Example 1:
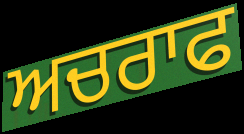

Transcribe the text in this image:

ਅਚਰਾਫ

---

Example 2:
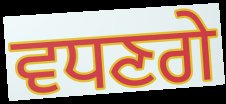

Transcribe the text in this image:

ਵਧਣਗੇ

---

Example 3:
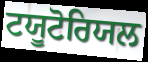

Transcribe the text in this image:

ਟਯੂਟੋਰਿਯਲ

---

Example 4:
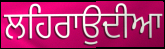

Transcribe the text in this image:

ਲਹਿਰਾਉਦੀਆ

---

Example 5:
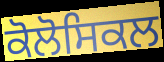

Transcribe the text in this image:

ਕੋਲੋਸਿਕਲ